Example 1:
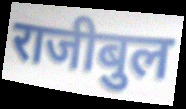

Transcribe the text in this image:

राजीबुल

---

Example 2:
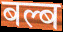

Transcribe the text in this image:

बल्ब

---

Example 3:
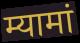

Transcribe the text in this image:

म्यामां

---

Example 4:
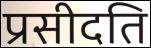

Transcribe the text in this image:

प्रसीदति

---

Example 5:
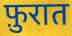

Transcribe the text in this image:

फ़ुरात